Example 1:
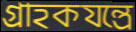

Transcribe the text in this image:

গ্রাহকযন্ত্রে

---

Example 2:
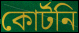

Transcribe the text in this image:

কোর্টনি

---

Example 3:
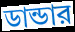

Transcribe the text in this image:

ডান্ডার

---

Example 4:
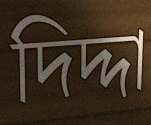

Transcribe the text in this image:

দিদ্দা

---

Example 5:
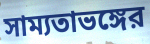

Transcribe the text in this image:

সাম্যতাভঙ্গের